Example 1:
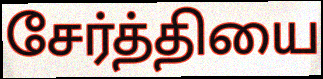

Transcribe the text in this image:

சேர்த்தியை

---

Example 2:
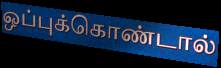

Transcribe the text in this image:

ஒப்புக்கொண்டால்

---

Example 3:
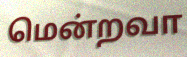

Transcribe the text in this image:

மென்றவா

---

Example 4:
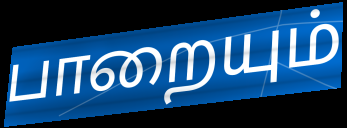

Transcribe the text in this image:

பாறையும்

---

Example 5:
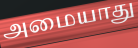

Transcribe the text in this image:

அமையாது